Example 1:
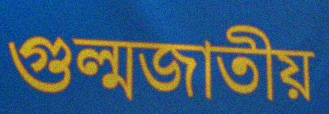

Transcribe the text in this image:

গুল্মজাতীয়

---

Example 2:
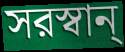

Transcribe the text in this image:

সরস্বান্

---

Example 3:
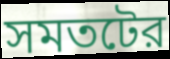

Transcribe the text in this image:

সমতটের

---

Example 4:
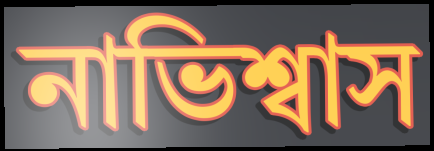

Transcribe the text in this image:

নাভিশ্বাস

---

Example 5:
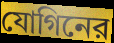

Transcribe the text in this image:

যোগিনের